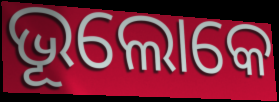
ଭୂଲୋକେ